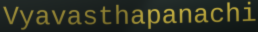
Vyavasthapanachi